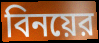
বিনয়ের